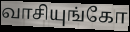
வாசியுங்கோ